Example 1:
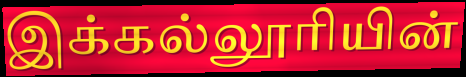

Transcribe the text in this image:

இக்கல்லூரியின்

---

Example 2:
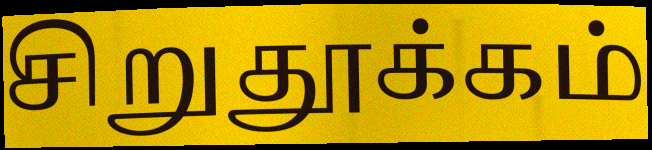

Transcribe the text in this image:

சிறுதூக்கம்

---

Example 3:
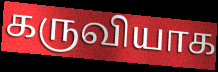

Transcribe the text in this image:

கருவியாக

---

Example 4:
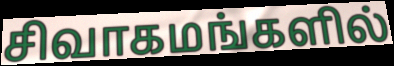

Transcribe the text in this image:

சிவாகமங்களில்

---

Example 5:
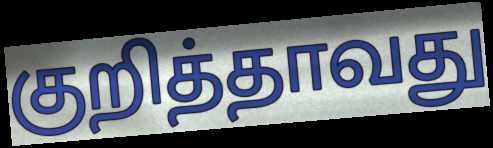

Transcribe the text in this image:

குறித்தாவது